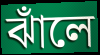
ঝাঁলে